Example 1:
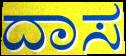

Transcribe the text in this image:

ದಾಸ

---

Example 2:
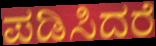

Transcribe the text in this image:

ಪಡಿಸಿದರೆ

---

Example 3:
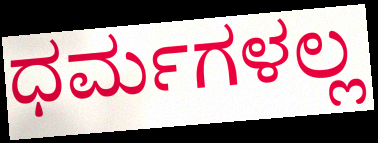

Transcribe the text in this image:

ಧರ್ಮಗಳಲ್ಲ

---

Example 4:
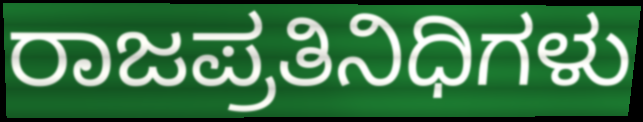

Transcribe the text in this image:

ರಾಜಪ್ರತಿನಿಧಿಗಳು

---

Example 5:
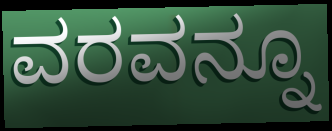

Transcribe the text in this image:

ವರವನ್ನೂ